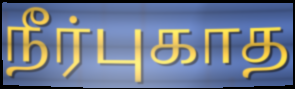
நீர்புகாத